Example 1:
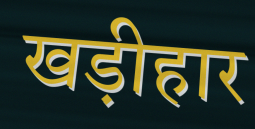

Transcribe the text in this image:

खड़ीहार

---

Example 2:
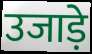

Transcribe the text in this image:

उजाड़े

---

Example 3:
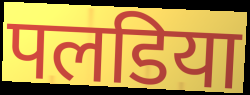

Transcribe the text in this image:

पलडिया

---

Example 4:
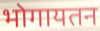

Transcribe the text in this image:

भोगायतन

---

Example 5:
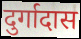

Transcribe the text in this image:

दुर्गादास